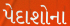
પેદાશોના